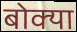
बोक्या